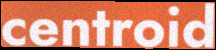
centroid